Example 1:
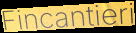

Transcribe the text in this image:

Fincantieri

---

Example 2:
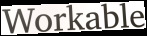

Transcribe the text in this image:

Workable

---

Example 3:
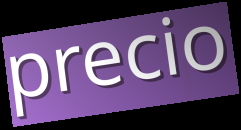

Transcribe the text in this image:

precio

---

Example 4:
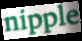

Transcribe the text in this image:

nipple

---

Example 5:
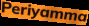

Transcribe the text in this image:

Periyamma